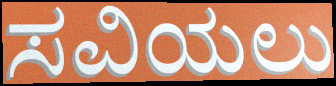
ಸವಿಯಲು